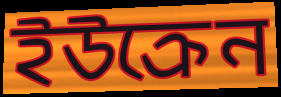
ইউক্রেন